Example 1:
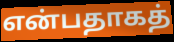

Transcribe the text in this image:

என்பதாகத்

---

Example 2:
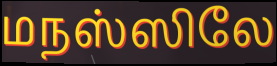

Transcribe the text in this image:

மநஸ்ஸிலே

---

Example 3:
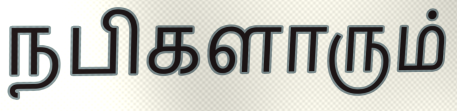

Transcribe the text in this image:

நபிகளாரும்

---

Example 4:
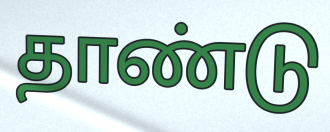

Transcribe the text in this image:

தாண்டு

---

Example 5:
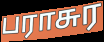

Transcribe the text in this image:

பராசுர